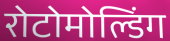
रोटोमोल्डिंग